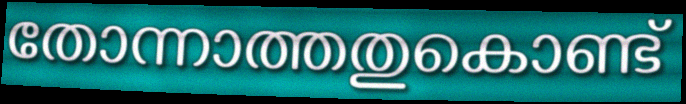
തോന്നാത്തതുകൊണ്ട്